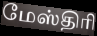
மேஸ்திரி